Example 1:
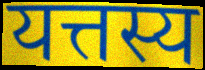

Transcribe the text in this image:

यत्तस्य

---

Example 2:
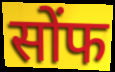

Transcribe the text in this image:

सोंफ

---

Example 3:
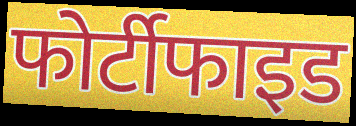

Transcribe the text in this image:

फोर्टीफाइड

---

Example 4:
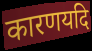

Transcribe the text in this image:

कारणयदि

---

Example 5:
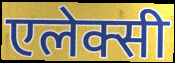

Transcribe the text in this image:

एलेक्सी